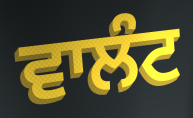
ਵਾਲੰਟ